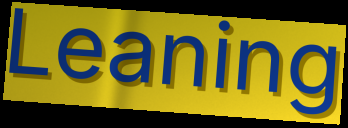
Leaning